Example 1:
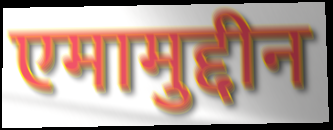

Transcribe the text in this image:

एमामुद्दीन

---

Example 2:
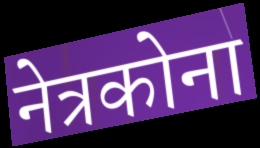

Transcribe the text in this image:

नेत्रकोना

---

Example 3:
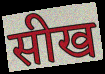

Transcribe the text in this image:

सीख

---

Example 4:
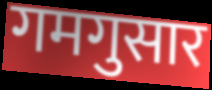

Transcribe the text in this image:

गमगुसार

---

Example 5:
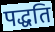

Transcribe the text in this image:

पद्धति